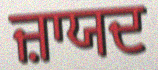
ਜ਼ਾਯਦ